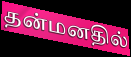
தன்மனதில்